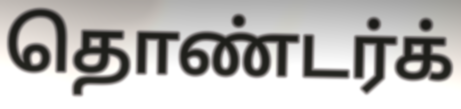
தொண்டர்க்